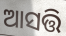
ଆସତ୍ତି